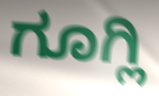
ಗೂಗ್ಲಿ